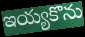
ఇయ్యకొను